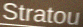
Stratou